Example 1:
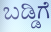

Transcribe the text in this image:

ಬಡ್ಡಿಗೆ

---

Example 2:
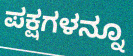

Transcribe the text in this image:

ಪಕ್ಷಗಳನ್ನೂ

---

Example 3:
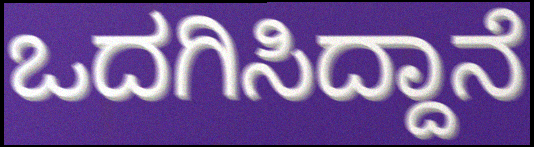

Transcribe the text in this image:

ಒದಗಿಸಿದ್ದಾನೆ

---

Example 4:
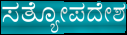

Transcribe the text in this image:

ಸತ್ಯೋಪದೇಶ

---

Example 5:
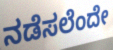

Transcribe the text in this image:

ನಡೆಸಲೆಂದೇ